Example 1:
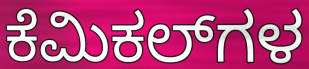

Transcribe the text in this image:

ಕೆಮಿಕಲ್‌ಗಳ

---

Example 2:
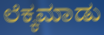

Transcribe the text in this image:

ಲೆಕ್ಕಮಾಡು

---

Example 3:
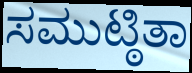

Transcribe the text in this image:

ಸಮುಟ್ಠಿತಾ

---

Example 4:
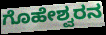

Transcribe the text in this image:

ಗೊಹೇಶ್ವರನ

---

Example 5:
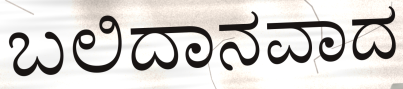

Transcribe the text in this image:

ಬಲಿದಾನವಾದ